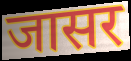
जासर